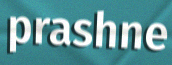
prashne